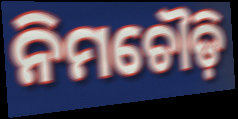
ନିମଚୌଡ଼ି